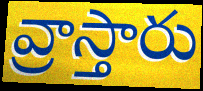
వ్రాస్తారు